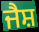
ਜੈਸ਼